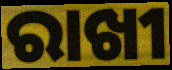
ରାଖୀ